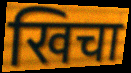
खिचा